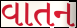
વાતન